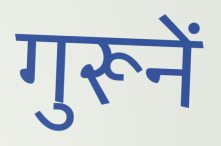
गुरूनें